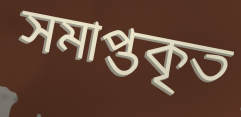
সমাপ্তকৃত